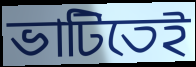
ভাটিতেই